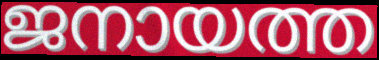
ജനായത്ത